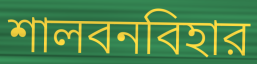
শালবনবিহার